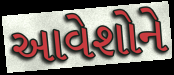
આવેશોને